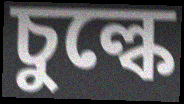
চুল্কে